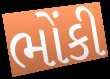
ભોંકી